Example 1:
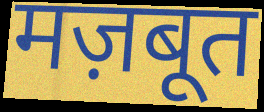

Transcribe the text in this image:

मज़बूत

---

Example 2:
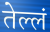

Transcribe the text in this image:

तेल्लं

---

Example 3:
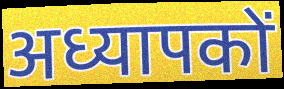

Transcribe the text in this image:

अध्यापकों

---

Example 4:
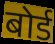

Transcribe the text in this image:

बोर्ड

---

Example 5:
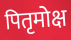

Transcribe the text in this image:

पितृमोक्ष